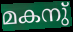
മകനു്